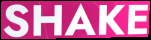
SHAKE